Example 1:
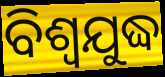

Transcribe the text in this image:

ବିଶ୍ୱଯୁଦ୍ଧ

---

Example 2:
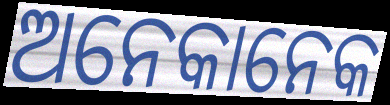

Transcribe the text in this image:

ଅନେକାନେକ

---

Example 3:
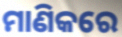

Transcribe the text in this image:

ମାଣିକରେ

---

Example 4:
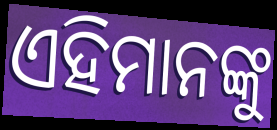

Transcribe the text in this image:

ଏହିମାନଙ୍କୁ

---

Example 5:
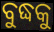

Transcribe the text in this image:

ବୁଦ୍ଧକୁ